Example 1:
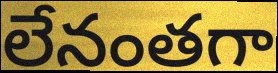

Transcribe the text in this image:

లేనంతగా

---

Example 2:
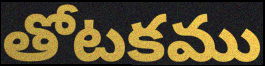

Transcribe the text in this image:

తోటకము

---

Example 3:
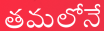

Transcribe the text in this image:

తమలోనే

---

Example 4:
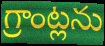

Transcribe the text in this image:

గ్రాంట్లను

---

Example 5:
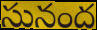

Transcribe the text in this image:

సునంద